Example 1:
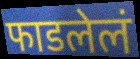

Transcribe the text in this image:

फाडलेलं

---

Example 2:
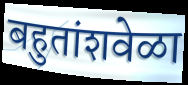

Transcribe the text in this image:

बहुतांशवेळा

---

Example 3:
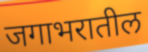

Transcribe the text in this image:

जगाभरातील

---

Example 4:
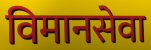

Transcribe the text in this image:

विमानसेवा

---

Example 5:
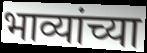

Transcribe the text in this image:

भाव्यांच्या